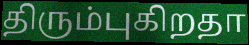
திரும்புகிறதா